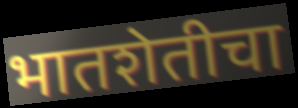
भातशेतीचा